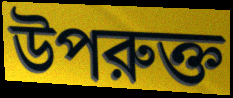
উপরুক্ত